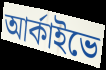
আর্কাইভে